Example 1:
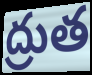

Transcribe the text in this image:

ద్రుత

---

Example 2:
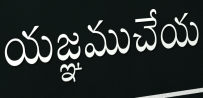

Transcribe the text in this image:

యజ్ఞముచేయ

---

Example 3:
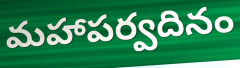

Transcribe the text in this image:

మహాపర్వదినం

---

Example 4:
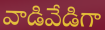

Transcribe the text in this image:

వాడివేడిగా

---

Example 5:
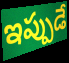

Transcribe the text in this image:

ఇప్పుడే